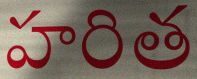
హరిత